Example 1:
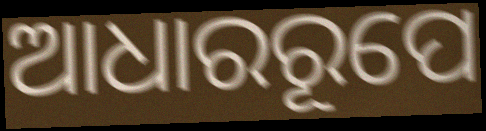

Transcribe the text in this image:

ଆଧାରରୂପେ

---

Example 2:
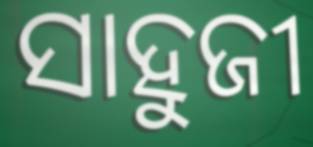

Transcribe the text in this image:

ସାହୁଜୀ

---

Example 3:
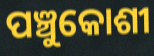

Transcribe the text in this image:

ପଞ୍ଚୁକୋଶୀ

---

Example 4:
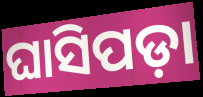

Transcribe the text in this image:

ଘାସିପଡ଼ା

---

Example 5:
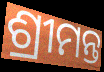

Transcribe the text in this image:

ଶ୍ରୀମନ୍ତ